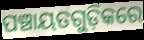
ପଞ୍ଚାୟତଗୁଡ଼ିକରେ